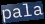
pala